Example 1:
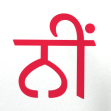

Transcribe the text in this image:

ਨੀਂ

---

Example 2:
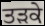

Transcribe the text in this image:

ਤੜਕੇ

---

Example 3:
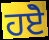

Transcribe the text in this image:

ਹਏੋ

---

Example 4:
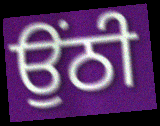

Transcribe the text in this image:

ਉਂਠੀ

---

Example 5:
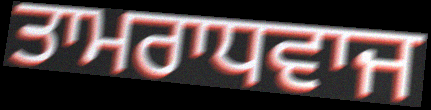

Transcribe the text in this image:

ਤਾਮਰਾਧਵਾਜ